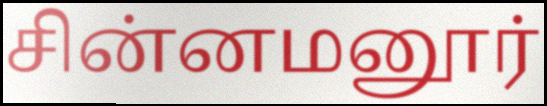
சின்னமனூர்